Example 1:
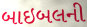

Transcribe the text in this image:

બાઇબલની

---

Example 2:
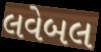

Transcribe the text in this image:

લવેબલ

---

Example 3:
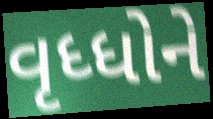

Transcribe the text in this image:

વૃધ્ધોને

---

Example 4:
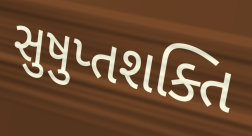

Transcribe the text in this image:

સુષુપ્તશક્તિ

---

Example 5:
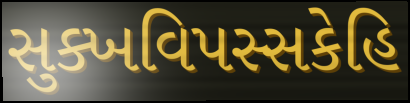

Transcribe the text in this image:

સુક્ખવિપસ્સકેહિ